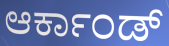
ಆರ್ಕಾಂಡ್